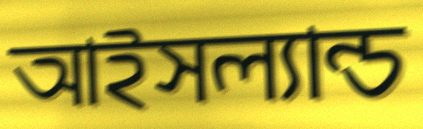
আইসল্যান্ড